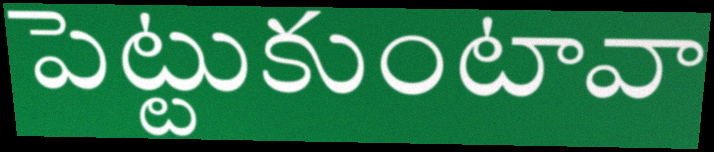
పెట్టుకుంటావా